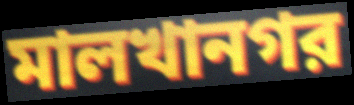
মালখানগর